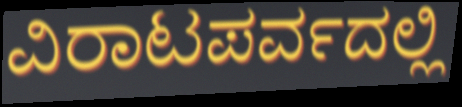
ವಿರಾಟಪರ್ವದಲ್ಲಿ